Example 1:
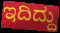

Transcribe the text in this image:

ಇದಿದ್ದು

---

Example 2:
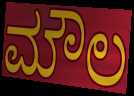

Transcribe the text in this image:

ಮೌಲ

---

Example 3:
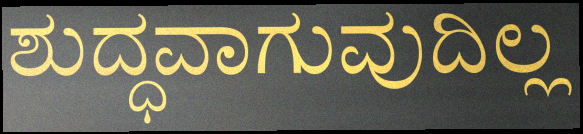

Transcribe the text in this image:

ಶುದ್ಧವಾಗುವುದಿಲ್ಲ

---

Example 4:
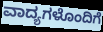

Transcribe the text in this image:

ವಾದ್ಯಗಳೊಂದಿಗೆ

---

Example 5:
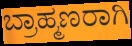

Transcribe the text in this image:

ಬ್ರಾಹ್ಮಣರಾಗಿ